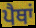
ਪੈਥਾਂ